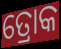
ତ୍ରୋକ